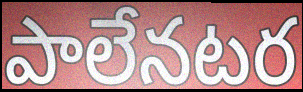
పాలేనటర